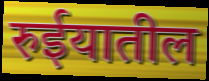
रुईयातील